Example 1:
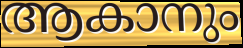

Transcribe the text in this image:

ആകാനും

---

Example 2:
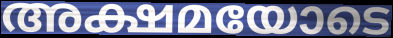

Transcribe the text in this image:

അക്ഷമയോടെ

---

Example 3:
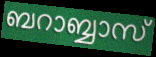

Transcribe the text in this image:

ബറാബ്ബാസ്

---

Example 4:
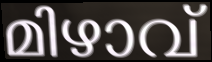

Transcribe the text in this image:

മിഴാവ്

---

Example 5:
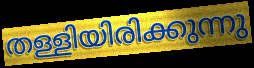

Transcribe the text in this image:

തള്ളിയിരിക്കുന്നു